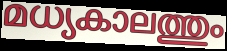
മധ്യകാലത്തും